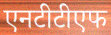
एनटीटीएफ